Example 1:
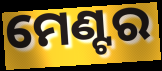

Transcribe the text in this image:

ମେଣ୍ଟର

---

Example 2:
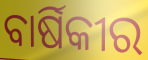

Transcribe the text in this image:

ବାର୍ଷିକୀର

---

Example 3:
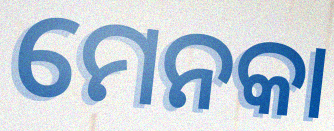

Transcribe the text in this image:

ମେନକା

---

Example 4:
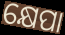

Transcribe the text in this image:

କ୍ଷେପା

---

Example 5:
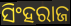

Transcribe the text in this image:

ସିଂହରାଜ